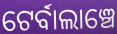
ଟେର୍ବାଲାଞ୍ଚେ